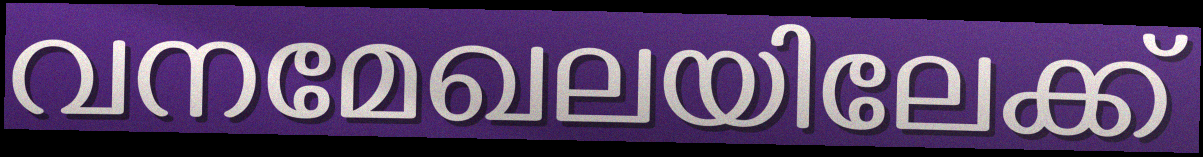
വനമേഖലയിലേക്ക്